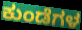
ಕುಂಡೆಗಳ